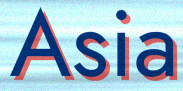
Asia